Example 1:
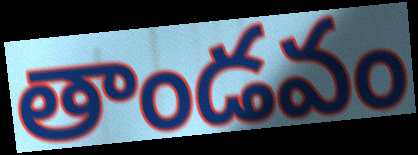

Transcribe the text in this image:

తాండవం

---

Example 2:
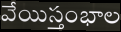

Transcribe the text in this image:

వేయిస్తంభాల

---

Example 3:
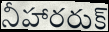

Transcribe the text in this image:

నీహారరుక్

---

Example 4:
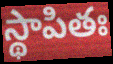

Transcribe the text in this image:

స్థాపితః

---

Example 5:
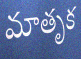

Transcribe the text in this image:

మాతృక